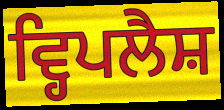
ਵ੍ਹਿਪਲੈਸ਼